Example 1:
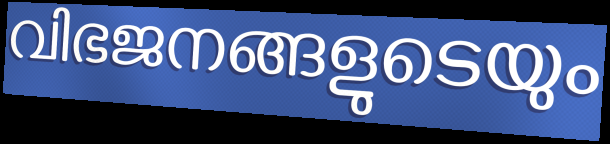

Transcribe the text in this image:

വിഭജനങ്ങളുടെയും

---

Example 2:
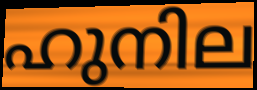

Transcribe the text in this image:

ഹുനില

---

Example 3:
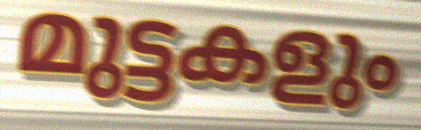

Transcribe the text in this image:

മുട്ടകളും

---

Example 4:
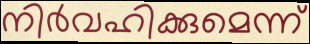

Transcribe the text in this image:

നിർവഹിക്കുമെന്ന്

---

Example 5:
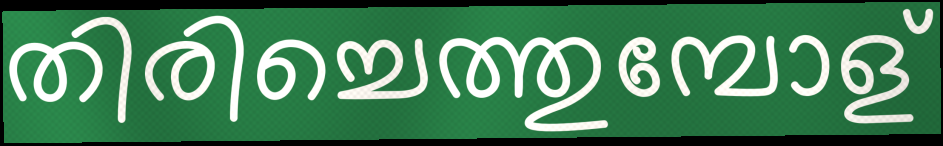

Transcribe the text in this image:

തിരിച്ചെത്തുമ്പോള്